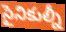
సైనికుల్నీ